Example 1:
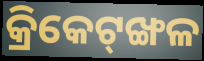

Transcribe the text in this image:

କ୍ରିକେଟ୍‌ଙ୍ଖଳ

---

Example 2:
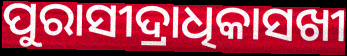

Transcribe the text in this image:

ପୁରାସୀଦ୍ରାଧିକାସଖୀ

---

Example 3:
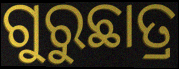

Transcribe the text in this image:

ଗୁରୁଛାତ୍ର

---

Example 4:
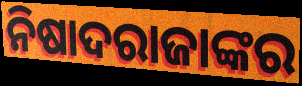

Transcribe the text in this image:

ନିଷାଦରାଜାଙ୍କର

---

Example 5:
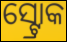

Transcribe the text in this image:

ସ୍ଟ୍ରୋକ